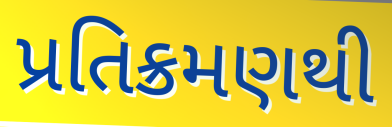
પ્રતિક્રમણથી